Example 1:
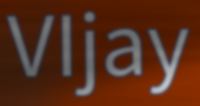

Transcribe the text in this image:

VIjay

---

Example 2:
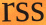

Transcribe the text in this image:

rss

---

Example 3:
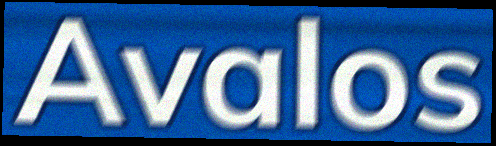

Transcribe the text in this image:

Avalos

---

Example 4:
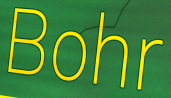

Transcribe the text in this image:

Bohr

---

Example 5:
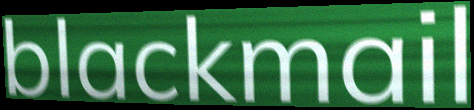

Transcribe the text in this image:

blackmail